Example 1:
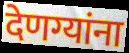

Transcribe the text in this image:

देणग्यांना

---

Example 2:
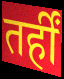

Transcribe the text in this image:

तर्हीं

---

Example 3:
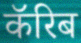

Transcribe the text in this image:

कॅरिब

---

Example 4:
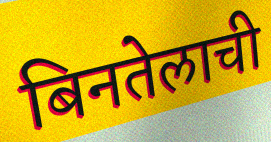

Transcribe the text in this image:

बिनतेलाची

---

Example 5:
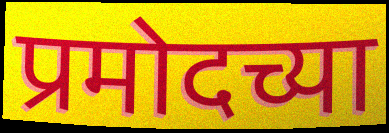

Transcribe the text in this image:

प्रमोदच्या